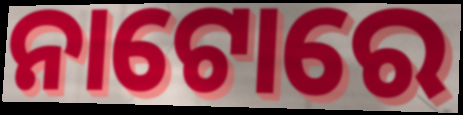
ନାଟୋରେ